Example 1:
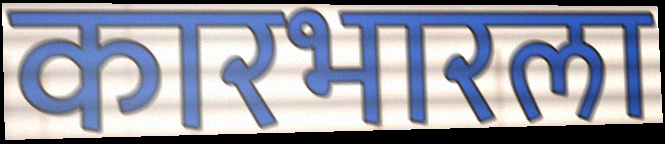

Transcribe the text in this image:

कारभारला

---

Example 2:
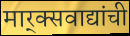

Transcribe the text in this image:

मार्क्सवाद्यांची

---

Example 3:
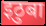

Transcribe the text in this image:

इठुबा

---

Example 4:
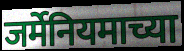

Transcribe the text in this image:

जर्मेनियमाच्या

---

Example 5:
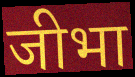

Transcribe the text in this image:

जीभा